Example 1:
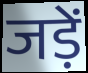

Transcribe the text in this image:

जड़ें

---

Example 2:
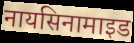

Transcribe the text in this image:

नायसिनामाइड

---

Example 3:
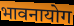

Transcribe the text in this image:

भावनायोग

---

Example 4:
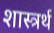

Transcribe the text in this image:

शास्त्रर्थ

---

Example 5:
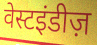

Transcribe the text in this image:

वेस्टइंडीज़